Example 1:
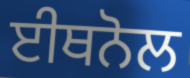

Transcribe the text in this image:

ਈਥਨੋਲ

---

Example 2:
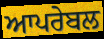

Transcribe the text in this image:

ਆਪਰੇਬਲ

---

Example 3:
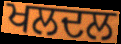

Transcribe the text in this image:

ਖਲਦਲ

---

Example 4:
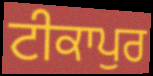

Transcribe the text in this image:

ਟੀਕਾਪੁਰ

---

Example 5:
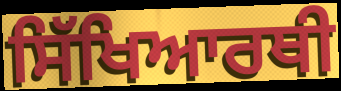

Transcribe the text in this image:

ਸਿੱਖਿਆਰਥੀ